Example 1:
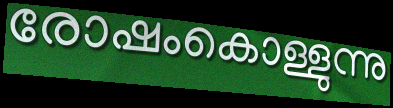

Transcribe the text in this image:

രോഷംകൊള്ളുന്നു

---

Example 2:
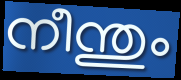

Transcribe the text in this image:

നീന്തും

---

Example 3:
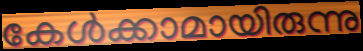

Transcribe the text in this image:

കേൾക്കാമായിരുന്നു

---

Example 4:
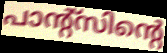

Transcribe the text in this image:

പാന്റ്സിന്റെ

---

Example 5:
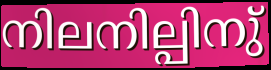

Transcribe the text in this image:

നിലനില്പിനു്